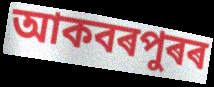
আকবৰপুৰৰ